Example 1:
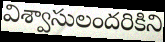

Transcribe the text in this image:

విశ్వాసులందరికిని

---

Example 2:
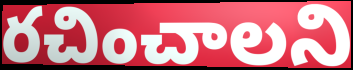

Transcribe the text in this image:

రచించాలని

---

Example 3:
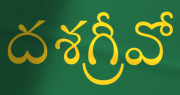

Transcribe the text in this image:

దశగ్రీవో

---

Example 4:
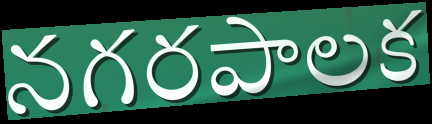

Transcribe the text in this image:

నగరపాలక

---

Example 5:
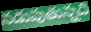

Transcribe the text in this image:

నడుపుతున్నది